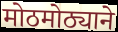
मोठमोठ्याने